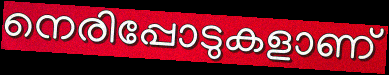
നെരിപ്പോടുകളാണ്